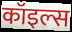
कॉइल्स